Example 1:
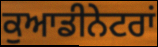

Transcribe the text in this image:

ਕੁਆਡੀਨੇਟਰਾਂ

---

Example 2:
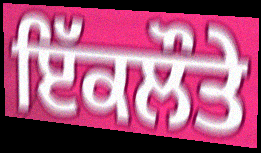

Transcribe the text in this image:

ਇੱਕਲੌਤੇ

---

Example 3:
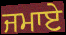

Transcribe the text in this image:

ਜਮਾਏ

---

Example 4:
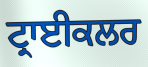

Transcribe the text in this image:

ਟ੍ਰਾਈਕਲਰ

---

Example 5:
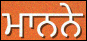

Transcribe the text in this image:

ਮਾਨਨੇ